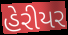
હેરીયર